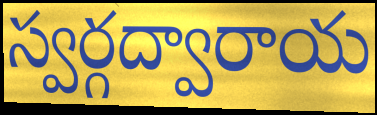
స్వర్గద్వారాయ